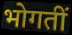
भोगतीं